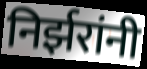
निर्झरांनी